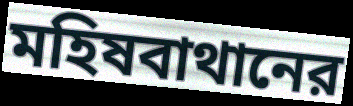
মহিষবাথানের